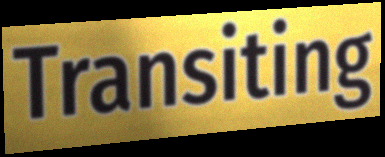
Transiting